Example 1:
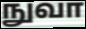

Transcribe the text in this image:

நுவா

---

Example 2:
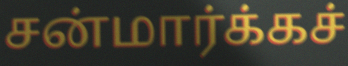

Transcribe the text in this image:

சன்மார்க்கச்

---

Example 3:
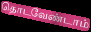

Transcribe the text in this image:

தொடவேண்டாம்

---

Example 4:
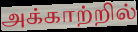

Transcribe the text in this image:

அக்காற்றில்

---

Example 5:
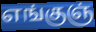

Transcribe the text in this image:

எங்குஞ்